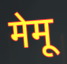
मेमू